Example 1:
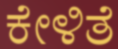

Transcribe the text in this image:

ಕೇಳಿತೆ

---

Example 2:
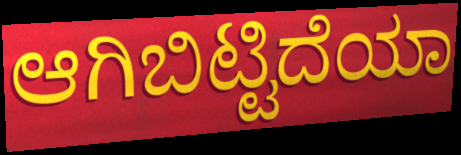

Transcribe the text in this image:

ಆಗಿಬಿಟ್ಟಿದೆಯಾ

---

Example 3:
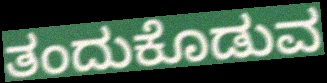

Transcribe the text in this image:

ತಂದುಕೊಡುವ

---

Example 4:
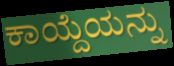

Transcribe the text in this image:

ಕಾಯ್ದೆಯನ್ನು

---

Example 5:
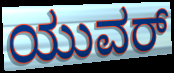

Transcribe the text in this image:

ಯುವರ್